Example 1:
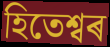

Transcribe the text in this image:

হিতেশ্বৰ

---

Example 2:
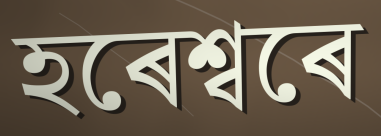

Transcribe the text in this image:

হৰেশ্বৰে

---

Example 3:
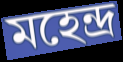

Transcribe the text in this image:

মহেন্দ্ৰ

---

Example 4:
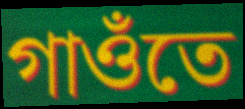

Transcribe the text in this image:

গাওঁতে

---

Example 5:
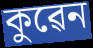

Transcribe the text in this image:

কুৱেন